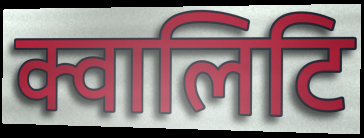
क्वालिटि